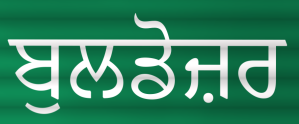
ਬੁਲਡੋਜ਼ਰ